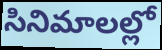
సినిమాలల్లో